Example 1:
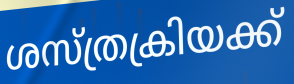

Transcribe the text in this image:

ശസ്ത്രക്രിയക്ക്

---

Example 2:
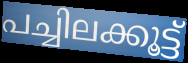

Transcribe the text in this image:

പച്ചിലക്കൂട്ട്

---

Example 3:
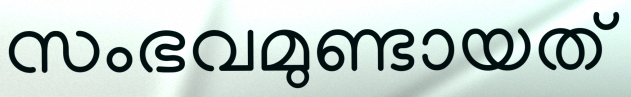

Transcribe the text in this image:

സംഭവമുണ്ടായത്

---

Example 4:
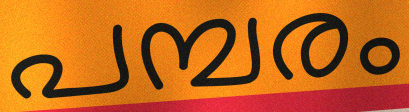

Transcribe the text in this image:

പമ്പരം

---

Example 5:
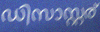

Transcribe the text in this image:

ഡിസാസ്റ്റര്